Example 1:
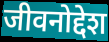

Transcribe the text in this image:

जीवनोद्देश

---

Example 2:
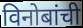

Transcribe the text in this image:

विनोबांची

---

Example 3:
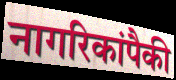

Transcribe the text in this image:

नागरिकांपैकी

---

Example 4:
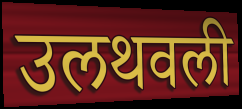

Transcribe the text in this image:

उलथवली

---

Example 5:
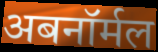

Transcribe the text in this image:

अबनॉर्मल